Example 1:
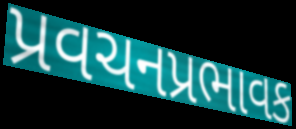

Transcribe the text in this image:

પ્રવચનપ્રભાવક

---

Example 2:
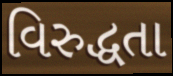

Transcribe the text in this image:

વિરુદ્ધતા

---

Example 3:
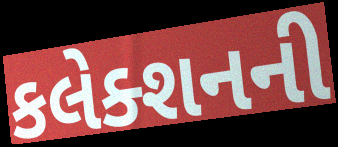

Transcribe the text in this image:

કલેક્શનની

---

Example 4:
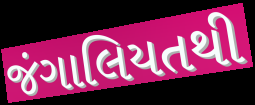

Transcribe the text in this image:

જંગાલિયતથી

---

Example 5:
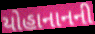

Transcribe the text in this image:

યોહાનાનની